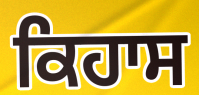
ਕਿਹਾਸ